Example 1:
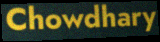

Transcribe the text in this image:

Chowdhary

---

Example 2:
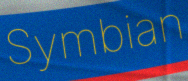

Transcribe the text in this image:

Symbian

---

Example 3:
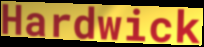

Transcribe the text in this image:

Hardwick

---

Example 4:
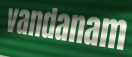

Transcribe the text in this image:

vandanam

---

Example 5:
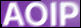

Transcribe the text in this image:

AOIP